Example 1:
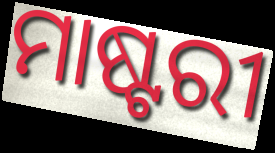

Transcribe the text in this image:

ମାଷ୍ଟରୀ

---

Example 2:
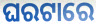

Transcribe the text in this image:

ଘରଟାରେ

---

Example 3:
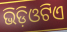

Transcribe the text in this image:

ଭିଡ଼ିଓଟିଏ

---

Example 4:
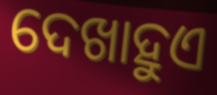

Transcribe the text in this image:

ଦେଖାହୁଏ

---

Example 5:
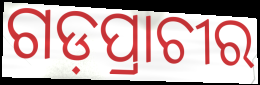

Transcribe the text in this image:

ଗଡ଼ପ୍ରାଚୀର